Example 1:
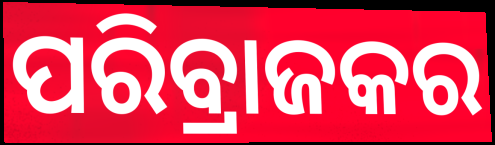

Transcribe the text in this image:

ପରିବ୍ରାଜକର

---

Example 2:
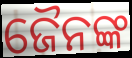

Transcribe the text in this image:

ଜୈନଙ୍କ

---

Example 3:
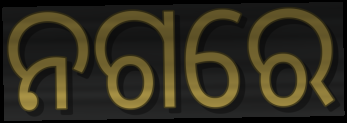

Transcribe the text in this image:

ନଗରେ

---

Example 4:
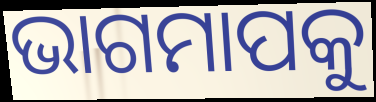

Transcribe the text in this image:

ଭାଗମାପକୁ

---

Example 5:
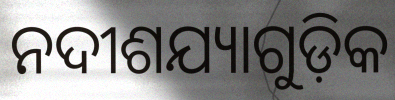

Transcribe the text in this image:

ନଦୀଶଯ୍ୟାଗୁଡ଼ିକ